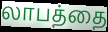
லாபத்தை